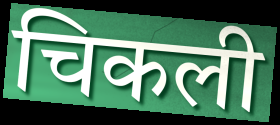
चिकली